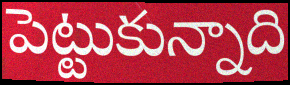
పెట్టుకున్నాది